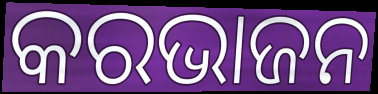
କରଭାଜନ